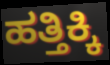
ಹತ್ತಿಕ್ಕಿ